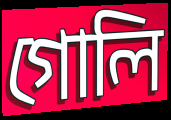
গোলি